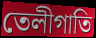
তেলীগাতি